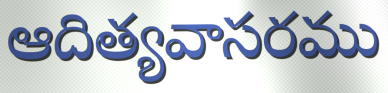
ఆదిత్యవాసరము